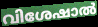
വിശേഷാൽ